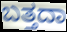
ಬತ್ತದಾ